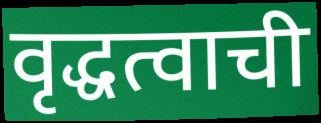
वृद्धत्वाची